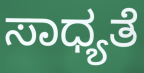
ಸಾಧ್ಯತೆ